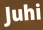
Juhi